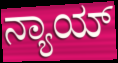
ನ್ಯಾಯ್